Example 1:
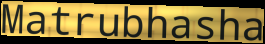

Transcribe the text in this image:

Matrubhasha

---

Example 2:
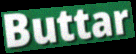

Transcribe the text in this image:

Buttar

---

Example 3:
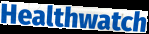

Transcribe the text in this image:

Healthwatch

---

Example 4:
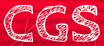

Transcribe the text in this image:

CGS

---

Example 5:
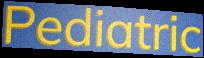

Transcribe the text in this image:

Pediatric